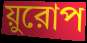
য়ুরোপ